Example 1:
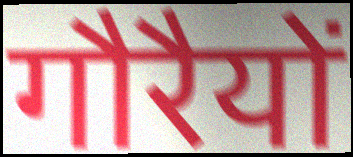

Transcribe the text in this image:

गौरैयों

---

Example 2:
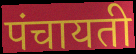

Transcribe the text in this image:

पंचायती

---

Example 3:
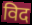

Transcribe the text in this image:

विद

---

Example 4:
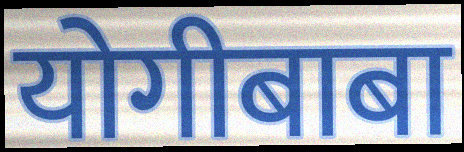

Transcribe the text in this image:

योगीबाबा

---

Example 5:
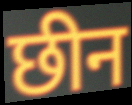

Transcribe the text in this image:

छीन